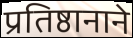
प्रतिष्ठानाने